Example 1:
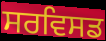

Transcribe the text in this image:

ਸਰਵਿਸਡ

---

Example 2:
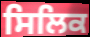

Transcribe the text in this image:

ਸਿਲਿਕ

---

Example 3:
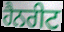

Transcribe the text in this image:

ਹੈਨਰੀਟ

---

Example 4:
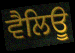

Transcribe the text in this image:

ਵੈਲਿਊ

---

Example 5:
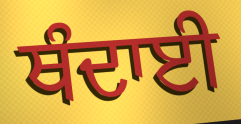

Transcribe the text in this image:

ਥੰਦਾਈ